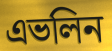
এভলিন